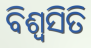
ବିଶ୍ଵସିତି